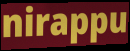
nirappu